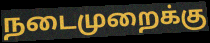
நடைமுறைக்கு